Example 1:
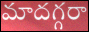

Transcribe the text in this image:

మాదగ్గరా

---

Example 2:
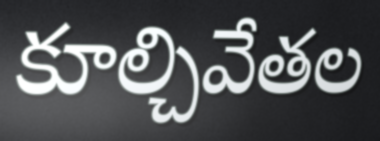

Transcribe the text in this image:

కూల్చివేతల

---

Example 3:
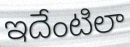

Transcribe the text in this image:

ఇదేంటిలా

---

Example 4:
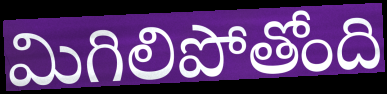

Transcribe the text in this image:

మిగిలిపోతోంది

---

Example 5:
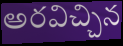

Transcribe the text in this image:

అరవిచ్చిన